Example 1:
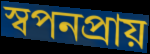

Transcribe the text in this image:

স্বপনপ্রায়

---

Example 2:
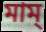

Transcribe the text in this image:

মাম্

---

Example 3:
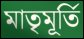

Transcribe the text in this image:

মাতৃমূর্তি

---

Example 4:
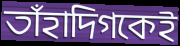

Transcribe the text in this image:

তাঁহাদিগকেই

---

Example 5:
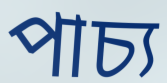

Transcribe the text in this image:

পাচ্য